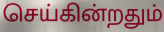
செய்கின்றதும்